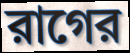
রাগের